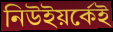
নিউইয়র্কেই